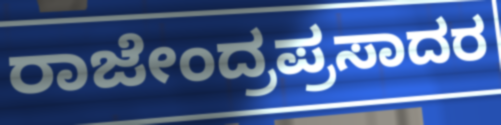
ರಾಜೇಂದ್ರಪ್ರಸಾದರ